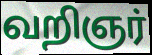
வறிஞர்